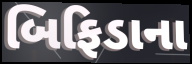
બિફિડાના